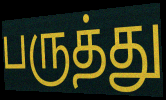
பருத்து